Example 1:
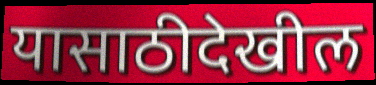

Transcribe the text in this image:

यासाठीदेखील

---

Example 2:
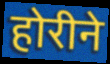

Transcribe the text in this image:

होरीने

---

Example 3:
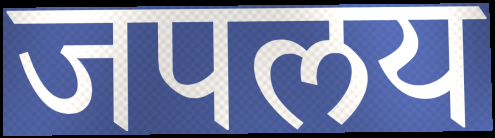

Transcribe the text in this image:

जपलय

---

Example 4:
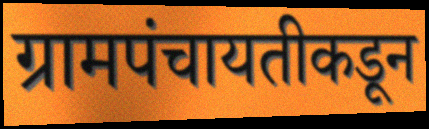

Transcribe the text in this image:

ग्रामपंचायतीकडून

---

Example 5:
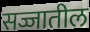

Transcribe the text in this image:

सज्जातील